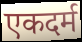
एकदर्म